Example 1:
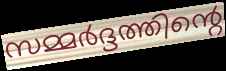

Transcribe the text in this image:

സമ്മർദ്ദത്തിന്റെ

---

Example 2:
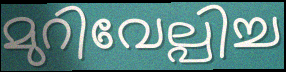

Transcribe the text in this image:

മുറിവേല്പിച്ച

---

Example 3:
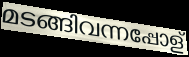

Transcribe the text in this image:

മടങ്ങിവന്നപ്പോള്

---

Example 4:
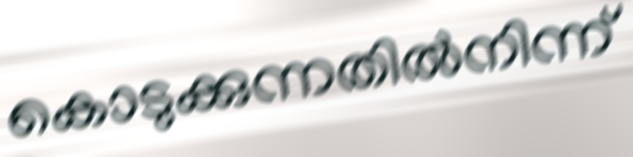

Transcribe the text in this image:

കൊടുക്കുന്നതിൽനിന്ന്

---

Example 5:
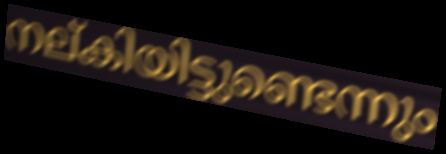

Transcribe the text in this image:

നല്കിയിട്ടുണ്ടെന്നും